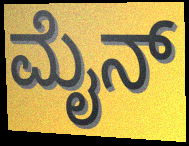
ಮೈನ್